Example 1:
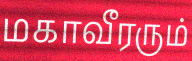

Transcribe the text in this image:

மகாவீரரும்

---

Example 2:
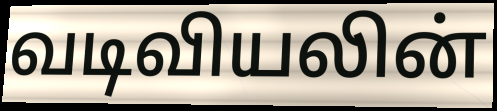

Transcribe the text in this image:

வடிவியலின்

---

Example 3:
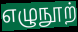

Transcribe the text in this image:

எழுநூற்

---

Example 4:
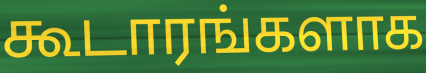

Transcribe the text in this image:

கூடாரங்களாக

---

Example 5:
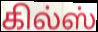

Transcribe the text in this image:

கில்ஸ்